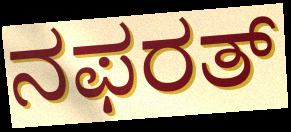
ನಫರತ್